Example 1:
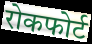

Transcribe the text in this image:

रोकफोर्ट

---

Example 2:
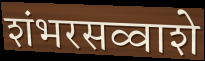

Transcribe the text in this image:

शंभरसव्वाशे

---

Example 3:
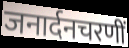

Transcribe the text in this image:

जनार्दनचरणीं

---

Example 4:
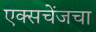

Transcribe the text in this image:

एक्सचेंजचा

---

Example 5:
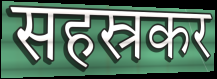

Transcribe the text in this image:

सहस्रकर